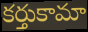
కర్తుకామా